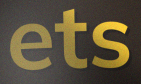
ets